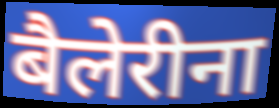
बैलेरीना